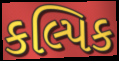
કલ્પિક